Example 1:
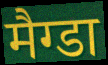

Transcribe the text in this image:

मैग्डा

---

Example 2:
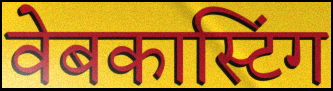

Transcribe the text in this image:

वेबकास्टिंग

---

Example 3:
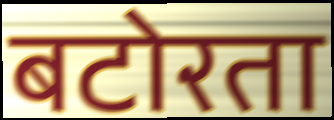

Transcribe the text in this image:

बटोरता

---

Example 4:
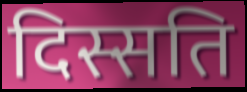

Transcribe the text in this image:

दिस्सति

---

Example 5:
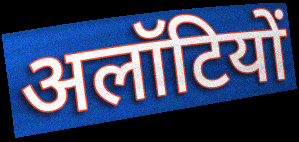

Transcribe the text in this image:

अलॉटियों